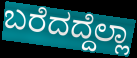
ಬರೆದದ್ದೆಲ್ಲಾ